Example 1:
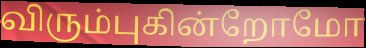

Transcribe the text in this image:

விரும்புகின்றோமோ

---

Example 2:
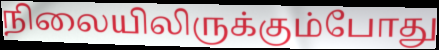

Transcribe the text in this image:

நிலையிலிருக்கும்போது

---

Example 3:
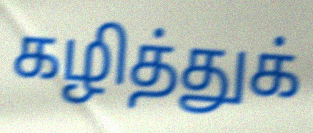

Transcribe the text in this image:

கழித்துக்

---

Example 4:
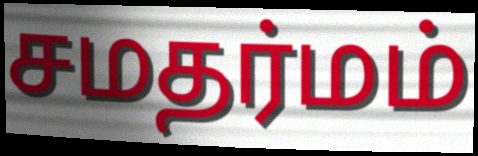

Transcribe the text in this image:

சமதர்மம்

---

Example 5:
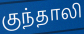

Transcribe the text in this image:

குந்தாலி